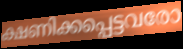
ക്ഷണിക്കപ്പെട്ടവരോ